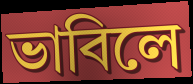
ভাবিলে